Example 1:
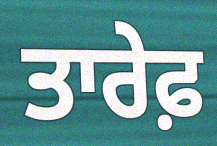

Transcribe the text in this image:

ਤਾਰੇਫ਼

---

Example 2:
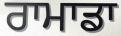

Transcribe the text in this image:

ਰਾਮਾਡਾ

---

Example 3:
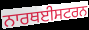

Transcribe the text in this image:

ਨਾਰਥਈਸਟਰਨ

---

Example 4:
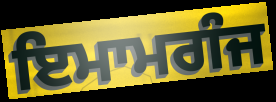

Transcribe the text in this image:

ਇਮਾਮਗੰਜ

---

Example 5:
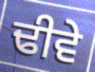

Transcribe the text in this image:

ਢੀਵੇ